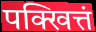
पक्खित्तं